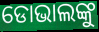
ଡୋଭାଲଙ୍କୁ